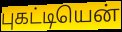
புகட்டியென்